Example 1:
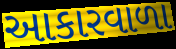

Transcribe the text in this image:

આકારવાળા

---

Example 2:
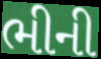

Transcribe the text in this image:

ભીની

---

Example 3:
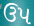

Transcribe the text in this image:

ઉપ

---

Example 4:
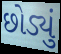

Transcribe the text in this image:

છોડ્યું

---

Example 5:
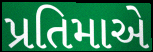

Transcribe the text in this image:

પ્રતિમાએ